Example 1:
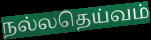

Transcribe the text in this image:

நல்லதெய்வம்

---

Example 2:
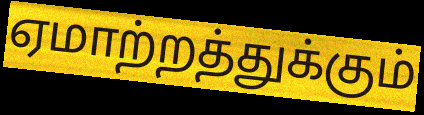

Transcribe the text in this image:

ஏமாற்றத்துக்கும்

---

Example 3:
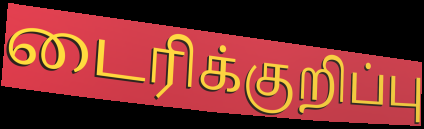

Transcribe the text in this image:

டைரிக்குறிப்பு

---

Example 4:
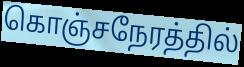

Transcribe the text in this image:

கொஞ்சநேரத்தில்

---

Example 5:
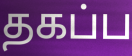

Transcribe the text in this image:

தகப்ப